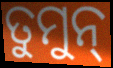
ତୁମୁନ୍